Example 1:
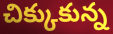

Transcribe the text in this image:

చిక్కుకున్న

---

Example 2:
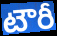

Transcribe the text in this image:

టౌరీ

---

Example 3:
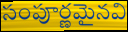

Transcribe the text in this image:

సంపూర్ణమైనవి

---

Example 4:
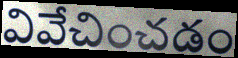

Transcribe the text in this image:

వివేచించడం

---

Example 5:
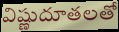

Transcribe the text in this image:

విష్ణుదూతలతో